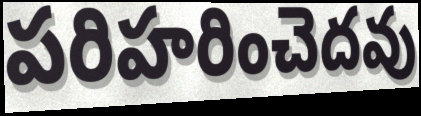
పరిహరించెదవు